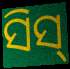
ସିସ୍